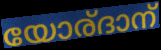
യോര്ദാന്